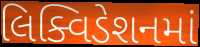
લિક્વિડેશનમાં